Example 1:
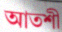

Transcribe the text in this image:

আতশী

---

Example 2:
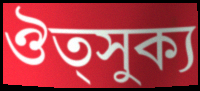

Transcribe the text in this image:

ঔত্সুক্য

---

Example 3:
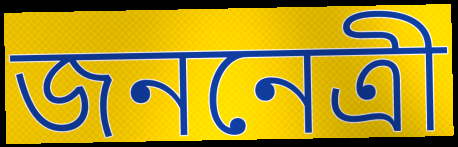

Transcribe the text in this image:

জননেত্রী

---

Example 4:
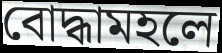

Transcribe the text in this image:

বোদ্ধামহলে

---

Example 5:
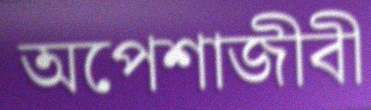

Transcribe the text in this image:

অপেশাজীবী